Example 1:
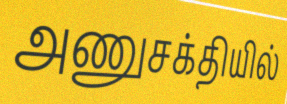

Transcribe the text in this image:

அணுசக்தியில்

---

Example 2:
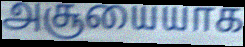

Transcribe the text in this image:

அசூயையாக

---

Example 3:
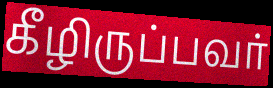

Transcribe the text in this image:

கீழிருப்பவர்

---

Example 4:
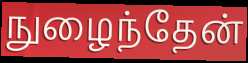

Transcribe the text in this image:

நுழைந்தேன்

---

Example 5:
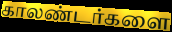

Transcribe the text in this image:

காலண்டர்களை